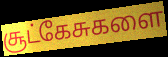
சூட்கேசுகளை